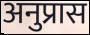
अनुप्रास